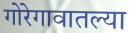
गोरेगावातल्या